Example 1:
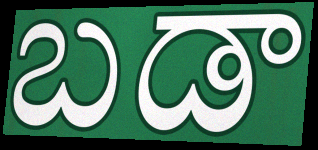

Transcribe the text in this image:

బడా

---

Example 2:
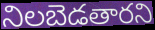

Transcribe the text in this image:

నిలబెడతారని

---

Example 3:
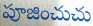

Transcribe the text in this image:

పూజించుచు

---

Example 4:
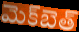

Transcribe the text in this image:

మెక్‌బెత్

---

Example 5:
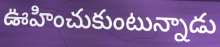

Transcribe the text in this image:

ఊహించుకుంటున్నాడు